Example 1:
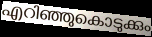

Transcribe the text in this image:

എറിഞ്ഞുകൊടുക്കും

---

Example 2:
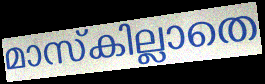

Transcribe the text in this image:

മാസ്‌കില്ലാതെ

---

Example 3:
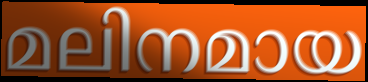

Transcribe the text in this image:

മലിനമായ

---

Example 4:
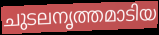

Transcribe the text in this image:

ചുടലനൃത്തമാടിയ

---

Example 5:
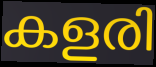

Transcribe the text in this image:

കളരി